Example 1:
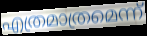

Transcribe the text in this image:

എത്രമാത്രമെന്ന്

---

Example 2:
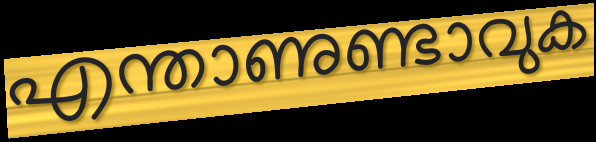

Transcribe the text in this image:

എന്താണുണ്ടാവുക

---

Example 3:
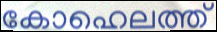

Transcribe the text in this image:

കോഹെലത്ത്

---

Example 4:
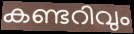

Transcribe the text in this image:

കണ്ടറിവും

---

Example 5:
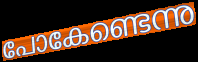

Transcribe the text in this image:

പോകേണ്ടെന്നു